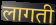
लागती